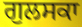
ਗੁਲਸਕਾ